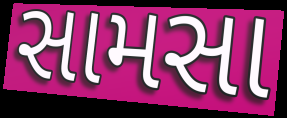
સામસા